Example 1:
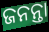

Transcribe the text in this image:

ଜନନ୍ତା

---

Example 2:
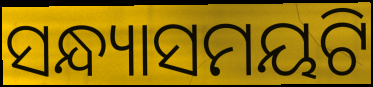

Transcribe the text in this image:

ସନ୍ଧ୍ୟାସମୟଟି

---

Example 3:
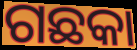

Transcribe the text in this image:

ଗଛକା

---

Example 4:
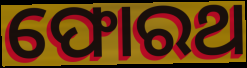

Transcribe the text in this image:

ଫୋରଥ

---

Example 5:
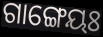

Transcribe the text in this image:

ଗାଙ୍ଗେୟଃ